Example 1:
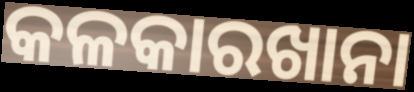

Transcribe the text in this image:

କଳକାରଖାନା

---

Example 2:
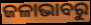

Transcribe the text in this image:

ଜଳାଭାବରୁ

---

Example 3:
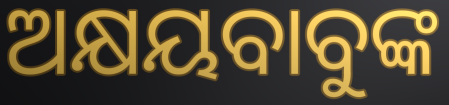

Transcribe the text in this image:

ଅକ୍ଷୟବାବୁଙ୍କ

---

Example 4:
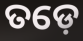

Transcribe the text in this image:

ତଡ଼େ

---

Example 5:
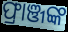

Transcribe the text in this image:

ଫ୍ରାଞ୍ଜଙ୍କ